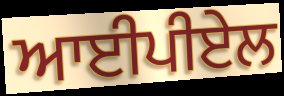
ਆਈਪੀਏਲ